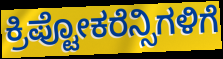
ಕ್ರಿಪ್ಟೋಕರೆನ್ಸಿಗಳಿಗೆ